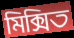
মিক্সিত